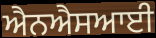
ਐਨਐਸਆਈ